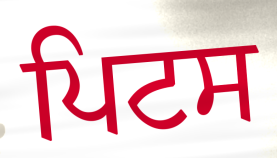
ਪਿਟਸ